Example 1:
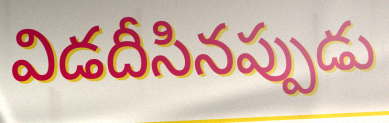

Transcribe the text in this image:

విడదీసినప్పుడు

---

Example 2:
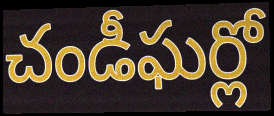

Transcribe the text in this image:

చండీఘర్లో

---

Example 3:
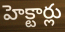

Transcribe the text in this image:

హెక్టార్లు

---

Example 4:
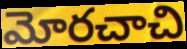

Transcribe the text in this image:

మోరచాచి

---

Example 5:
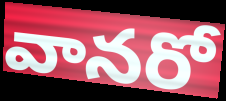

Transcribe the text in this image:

వానరో